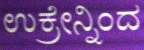
ಉಕ್ರೇನ್ನಿಂದ